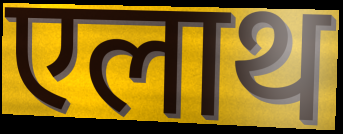
एलाथ